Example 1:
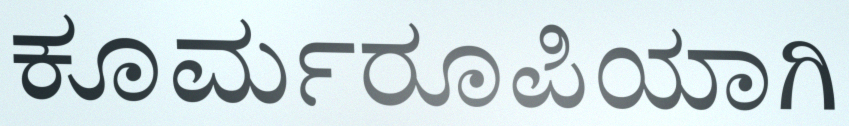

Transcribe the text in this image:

ಕೂರ್ಮರೂಪಿಯಾಗಿ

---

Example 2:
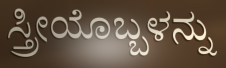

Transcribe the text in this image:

ಸ್ತ್ರೀಯೊಬ್ಬಳನ್ನು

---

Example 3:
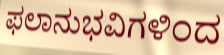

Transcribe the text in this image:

ಫಲಾನುಭವಿಗಳಿಂದ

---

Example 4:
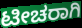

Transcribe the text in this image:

ಟೀಚರಾಗಿ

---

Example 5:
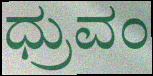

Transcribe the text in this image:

ಧ್ರುವಂ